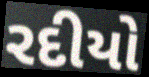
રદીયો